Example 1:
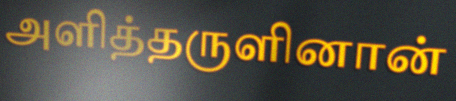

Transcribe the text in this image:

அளித்தருளினான்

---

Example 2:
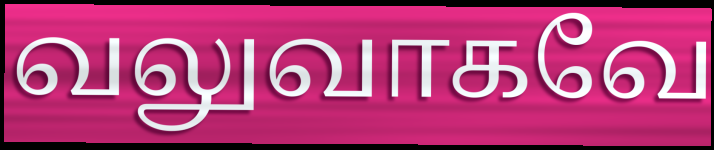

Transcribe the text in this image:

வலுவாகவே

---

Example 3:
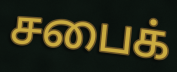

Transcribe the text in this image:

சபைக்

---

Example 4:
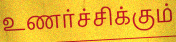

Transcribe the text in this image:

உணர்ச்சிக்கும்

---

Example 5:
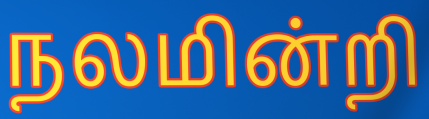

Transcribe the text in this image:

நலமின்றி